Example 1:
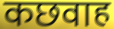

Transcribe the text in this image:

कछवाह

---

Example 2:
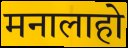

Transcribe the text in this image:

मनालाहो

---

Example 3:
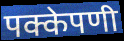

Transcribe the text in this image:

पक्केपणी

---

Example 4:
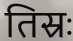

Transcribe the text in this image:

तिस्रः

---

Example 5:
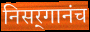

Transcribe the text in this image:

निसर्गानंच